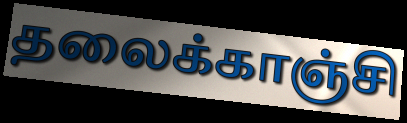
தலைக்காஞ்சி